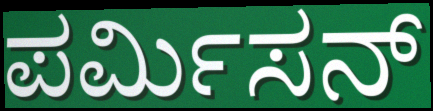
ಪರ್ಮಿಸನ್